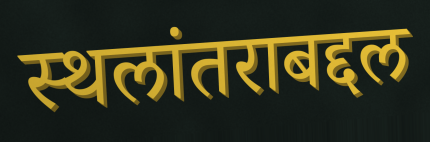
स्थलांतराबद्दल